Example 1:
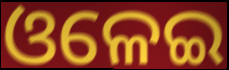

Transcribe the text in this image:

ଓଳେଇ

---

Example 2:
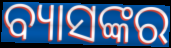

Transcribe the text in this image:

ବ୍ୟାସଙ୍କର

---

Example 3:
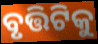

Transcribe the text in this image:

ବୃତ୍ତିଟିକୁ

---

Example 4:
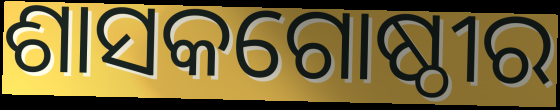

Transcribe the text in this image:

ଶାସକଗୋଷ୍ଠୀର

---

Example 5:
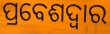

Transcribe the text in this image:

ପ୍ରବେଶଦ୍ଵାର